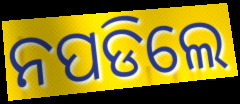
ନପଡିଲେ